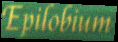
Epilobium